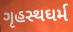
ગૃહસ્થઘર્મ